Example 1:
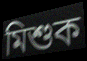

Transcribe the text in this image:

মিশুক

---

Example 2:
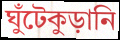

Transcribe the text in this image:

ঘুঁটেকুড়ানি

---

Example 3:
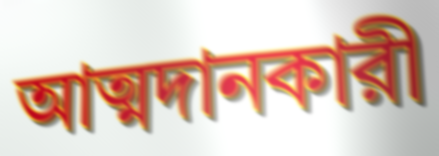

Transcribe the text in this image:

আত্মদানকারী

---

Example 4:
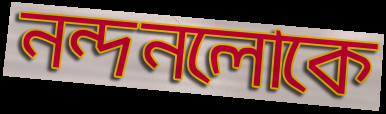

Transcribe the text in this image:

নন্দনলোকে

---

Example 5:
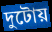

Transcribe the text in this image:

দুটোয়